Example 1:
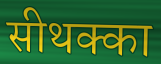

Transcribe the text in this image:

सीथक्का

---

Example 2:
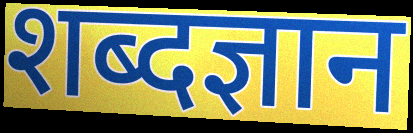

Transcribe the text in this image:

शब्दज्ञान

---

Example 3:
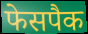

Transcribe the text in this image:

फेसपैक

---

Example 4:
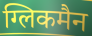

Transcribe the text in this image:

ग्लिकमैन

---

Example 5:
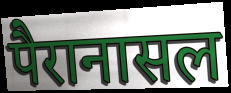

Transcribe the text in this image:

पैरानासल